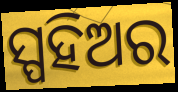
ସ୍ପହିଅର